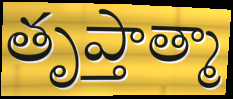
తృప్తాత్మా